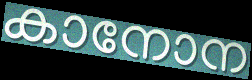
കാനോന